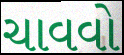
ચાવવો